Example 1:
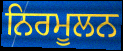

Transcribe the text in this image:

ਨਿਰਮੂਲਨ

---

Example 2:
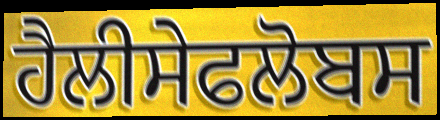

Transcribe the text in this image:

ਹੈਲੀਸੇਫਲੋਬਸ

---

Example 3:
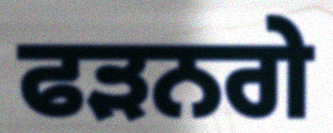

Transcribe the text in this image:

ਫੜਨਗੇ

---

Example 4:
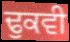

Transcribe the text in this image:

ਢੁਕਵੀ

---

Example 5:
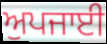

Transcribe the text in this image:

ਅੁਪਜਾਈ